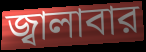
জ্বালাবার